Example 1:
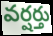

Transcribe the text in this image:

వర్షర్తు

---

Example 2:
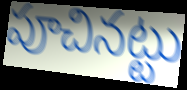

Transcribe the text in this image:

పూచినట్టు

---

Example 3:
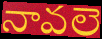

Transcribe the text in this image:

నావలె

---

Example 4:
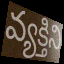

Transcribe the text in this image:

వ్యక్తిని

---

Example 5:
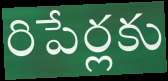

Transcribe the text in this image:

రిపేర్లకు